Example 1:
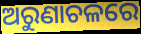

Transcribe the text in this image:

ଅରୁଣାଚଳରେ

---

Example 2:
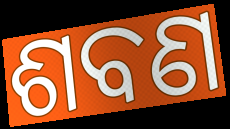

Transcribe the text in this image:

ଶବଣ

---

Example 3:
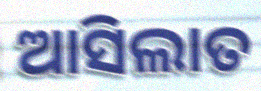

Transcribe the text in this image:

ଆସିଲାତ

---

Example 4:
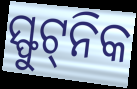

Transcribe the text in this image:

ସ୍ଫୁଟ୍‌ନିକ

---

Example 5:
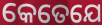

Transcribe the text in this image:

କେତେଯେ